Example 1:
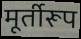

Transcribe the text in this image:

मूर्तीरूप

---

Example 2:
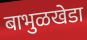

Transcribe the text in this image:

बाभुळखेडा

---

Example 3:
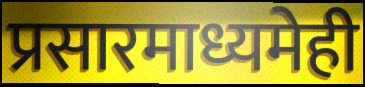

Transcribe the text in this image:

प्रसारमाध्यमेही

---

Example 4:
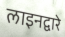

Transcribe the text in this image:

लाइनद्वारे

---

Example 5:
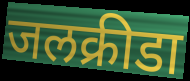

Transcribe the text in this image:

जलक्रीडा